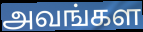
அவங்கள